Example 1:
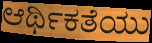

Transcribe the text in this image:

ಆರ್ಥಿಕತೆಯು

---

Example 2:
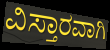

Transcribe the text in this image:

ವಿಸ್ತಾರವಾಗಿ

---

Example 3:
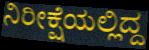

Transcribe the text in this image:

ನಿರೀಕ್ಷೆಯಲ್ಲಿದ್ದ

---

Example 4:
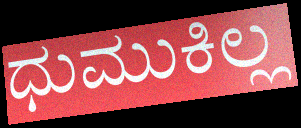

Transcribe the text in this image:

ಧುಮುಕಿಲ್ಲ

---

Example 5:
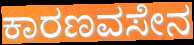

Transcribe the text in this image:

ಕಾರಣವಸೇನ